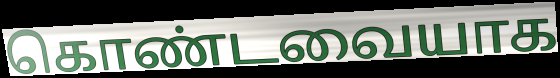
கொண்டவையாக